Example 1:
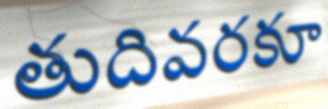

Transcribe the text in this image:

తుదివరకూ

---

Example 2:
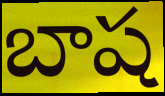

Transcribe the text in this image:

బాష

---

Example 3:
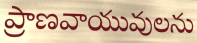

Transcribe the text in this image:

ప్రాణవాయువులను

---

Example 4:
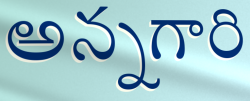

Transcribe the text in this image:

అన్నగారి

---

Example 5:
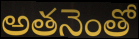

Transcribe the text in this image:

అతనెంతో